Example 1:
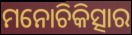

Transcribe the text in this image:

ମନୋଚିକିତ୍ସାର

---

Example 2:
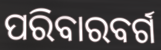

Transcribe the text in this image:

ପରିବାରବର୍ଗ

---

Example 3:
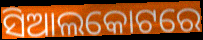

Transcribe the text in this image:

ସିଆଲକୋଟରେ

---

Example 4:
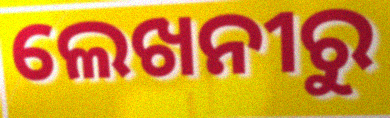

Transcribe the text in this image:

ଲେଖନୀରୁ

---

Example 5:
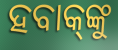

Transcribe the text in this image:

ହବାକ୍‌ଙ୍କୁ